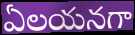
ఏలయనగా